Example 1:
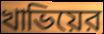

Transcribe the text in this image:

খাভিয়ের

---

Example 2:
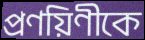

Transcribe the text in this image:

প্রণয়িণীকে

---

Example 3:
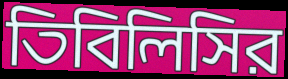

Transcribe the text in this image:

তিবিলিসির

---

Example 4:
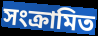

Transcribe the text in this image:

সংক্রামিত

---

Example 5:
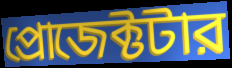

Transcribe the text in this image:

প্রোজেক্টটার